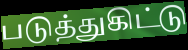
படுத்துகிட்டு